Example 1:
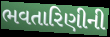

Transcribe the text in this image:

ભવતારિણીની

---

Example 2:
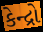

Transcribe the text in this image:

કેન્દ્રો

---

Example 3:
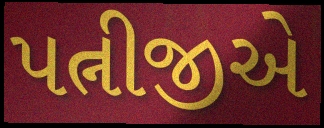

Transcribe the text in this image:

પત્નીજીએ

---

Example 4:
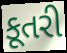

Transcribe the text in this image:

કૂતરી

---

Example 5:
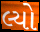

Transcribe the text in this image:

લ્યો